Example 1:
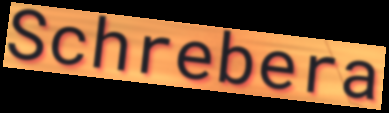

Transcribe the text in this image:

Schrebera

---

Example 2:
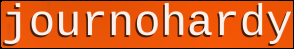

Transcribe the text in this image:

journohardy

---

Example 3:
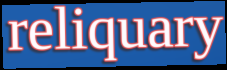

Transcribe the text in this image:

reliquary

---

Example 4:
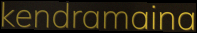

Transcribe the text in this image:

kendramaina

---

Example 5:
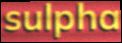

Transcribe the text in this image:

sulpha